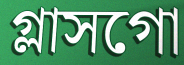
গ্লাসগো